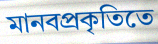
মানবপ্রকৃতিতে